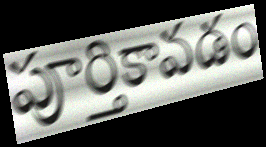
పూర్తికావడం